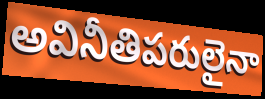
అవినీతిపరులైనా